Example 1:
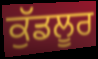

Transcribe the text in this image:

ਕੁੱਡਲੂਰ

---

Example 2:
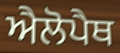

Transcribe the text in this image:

ਐਲੋਪੈਥ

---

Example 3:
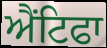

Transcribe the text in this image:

ਐਂਟਿਫਾ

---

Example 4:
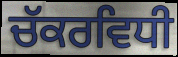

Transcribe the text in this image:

ਚੱਕਰਵਿਧੀ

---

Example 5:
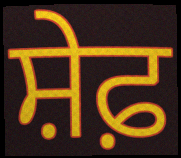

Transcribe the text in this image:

ਸ਼ੇਫ਼